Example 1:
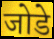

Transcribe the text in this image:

जोडे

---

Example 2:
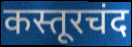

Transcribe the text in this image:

कस्तूरचंद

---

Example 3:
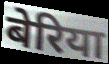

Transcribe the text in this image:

बेरिया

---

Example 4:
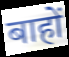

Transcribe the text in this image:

बाहों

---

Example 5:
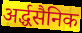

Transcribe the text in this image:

अर्द्धसैनिक